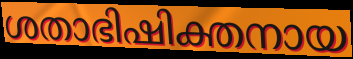
ശതാഭിഷിക്തനായ